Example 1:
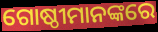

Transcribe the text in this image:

ଗୋଷ୍ଠୀମାନଙ୍କରେ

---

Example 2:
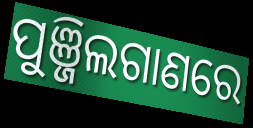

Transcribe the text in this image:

ପୁଞ୍ଜିଲଗାଣରେ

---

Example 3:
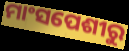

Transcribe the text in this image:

ମାଂସପେଶୀରୁ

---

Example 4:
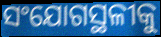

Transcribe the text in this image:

ସଂଯୋଗସ୍ଥଳୀକୁ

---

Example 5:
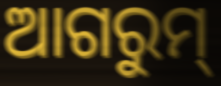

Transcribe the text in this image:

ଆଗରୁମ୍